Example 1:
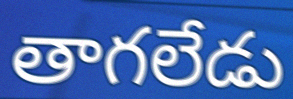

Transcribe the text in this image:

తాగలేడు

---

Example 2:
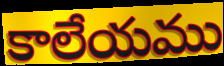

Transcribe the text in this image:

కాలేయము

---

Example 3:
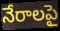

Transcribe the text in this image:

నేరాలపై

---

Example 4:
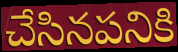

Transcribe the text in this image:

చేసినపనికి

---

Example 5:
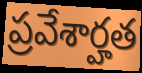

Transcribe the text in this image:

ప్రవేశార్హత